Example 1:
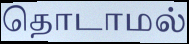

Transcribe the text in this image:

தொடாமல்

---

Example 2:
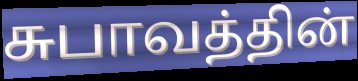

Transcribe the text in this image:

சுபாவத்தின்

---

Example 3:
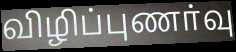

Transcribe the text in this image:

விழிப்புணர்வு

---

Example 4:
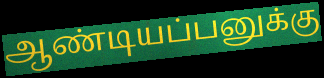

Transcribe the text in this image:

ஆண்டியப்பனுக்கு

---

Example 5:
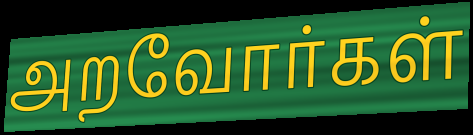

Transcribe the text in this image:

அறவோர்கள்